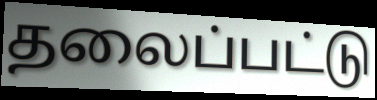
தலைப்பட்டு